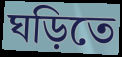
ঘড়িতে